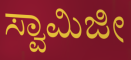
ಸ್ವಾಮಿಜೀ